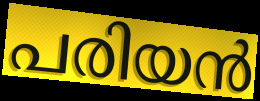
പരിയൻ